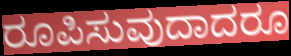
ರೂಪಿಸುವುದಾದರೂ